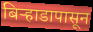
बिऱ्हाडापासून